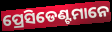
ପ୍ରେସିଡେଣ୍ଟମାନେ